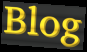
Blog